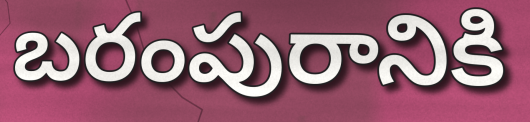
బరంపురానికి